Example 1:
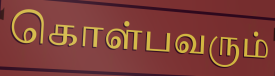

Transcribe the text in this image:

கொள்பவரும்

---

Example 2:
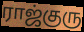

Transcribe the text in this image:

ராஜ்குரு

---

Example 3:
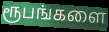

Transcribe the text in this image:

ரூபங்களை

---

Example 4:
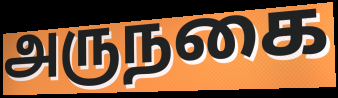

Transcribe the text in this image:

அருநகை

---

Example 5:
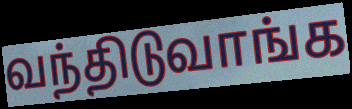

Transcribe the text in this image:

வந்திடுவாங்க